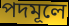
পদমূলে